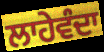
ਲਾਹੇਵੰਦਾ